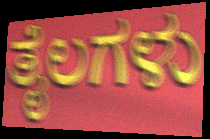
ತೈಲಗಳು